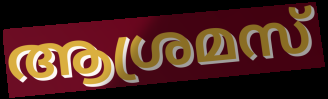
ആശ്രമസ്